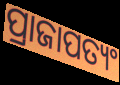
ପ୍ରାଜାପତ୍ୟଂ